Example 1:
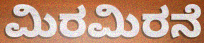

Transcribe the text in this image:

ಮಿರಮಿರನೆ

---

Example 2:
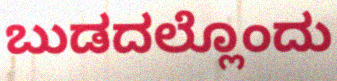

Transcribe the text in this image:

ಬುಡದಲ್ಲೊಂದು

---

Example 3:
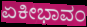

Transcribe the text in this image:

ಏಕೀಭಾವಂ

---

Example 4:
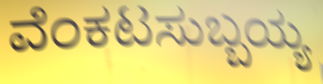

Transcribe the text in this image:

ವೆಂಕಟಸುಬ್ಬಯ್ಯ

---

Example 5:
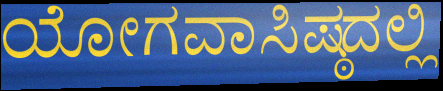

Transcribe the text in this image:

ಯೋಗವಾಸಿಷ್ಠದಲ್ಲಿ